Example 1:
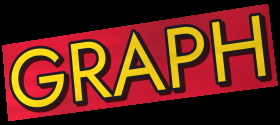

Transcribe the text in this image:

GRAPH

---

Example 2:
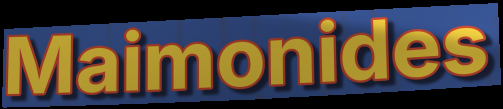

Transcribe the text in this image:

Maimonides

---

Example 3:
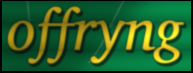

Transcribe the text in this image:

offryng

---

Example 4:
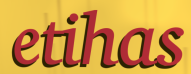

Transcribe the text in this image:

etihas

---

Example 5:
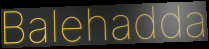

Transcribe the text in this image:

Balehadda